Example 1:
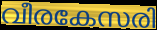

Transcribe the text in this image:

വീരകേസരി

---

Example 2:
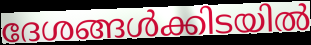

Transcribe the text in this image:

ദേശങ്ങൾക്കിടയിൽ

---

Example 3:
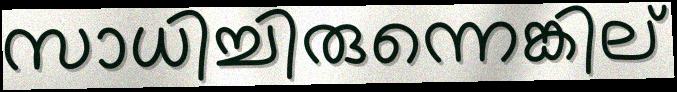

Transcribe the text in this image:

സാധിച്ചിരുന്നെങ്കില്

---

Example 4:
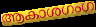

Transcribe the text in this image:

ആകാശഗംഗ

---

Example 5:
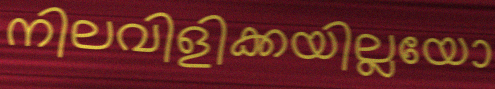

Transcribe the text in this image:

നിലവിളിക്കയില്ലയോ